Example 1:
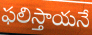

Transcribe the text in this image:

ఫలిస్తాయనే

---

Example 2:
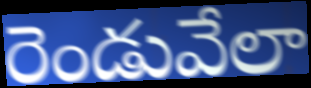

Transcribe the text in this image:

రెండువేలా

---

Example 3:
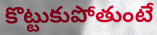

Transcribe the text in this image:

కొట్టుకుపోతుంటే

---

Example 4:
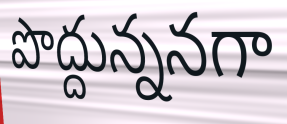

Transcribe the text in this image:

పొద్దున్ననగా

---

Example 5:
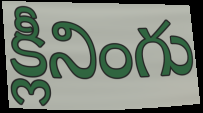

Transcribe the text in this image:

క్లీనింగు